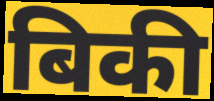
बिकी